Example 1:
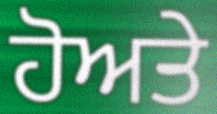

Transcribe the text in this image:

ਹੋਅਤੇ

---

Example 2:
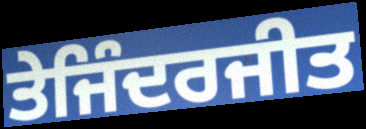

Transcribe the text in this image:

ਤੇਜਿੰਦਰਜੀਤ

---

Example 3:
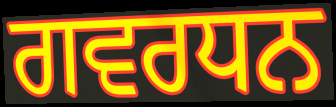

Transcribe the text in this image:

ਗਵਰਧਨ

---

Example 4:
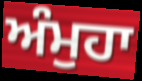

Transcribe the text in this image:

ਅੰਮੁਹਾ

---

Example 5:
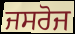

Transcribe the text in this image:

ਜਸਰੋਜ